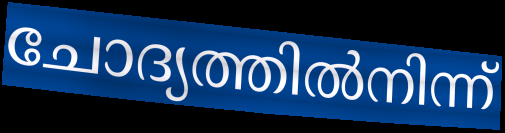
ചോദ്യത്തിൽനിന്ന്